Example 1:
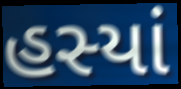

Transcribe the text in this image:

હસ્યાં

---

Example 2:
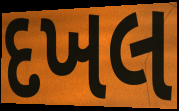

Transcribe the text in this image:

દખલ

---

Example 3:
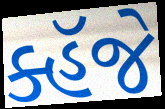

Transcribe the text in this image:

ક્હૅજે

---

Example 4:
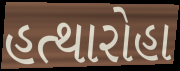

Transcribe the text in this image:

હત્થારોહા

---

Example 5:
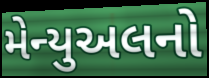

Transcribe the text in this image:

મેન્યુઅલનો